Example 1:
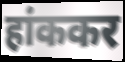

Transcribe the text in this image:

हांककर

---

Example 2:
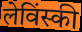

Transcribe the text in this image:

लेविंस्की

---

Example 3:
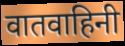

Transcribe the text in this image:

वातवाहिनी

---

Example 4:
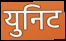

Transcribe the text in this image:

युनिट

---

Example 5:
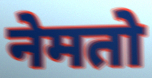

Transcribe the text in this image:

नेमतो